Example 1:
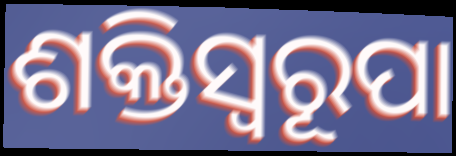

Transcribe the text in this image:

ଶକ୍ତିସ୍ବରୂପା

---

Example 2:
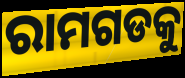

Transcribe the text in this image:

ରାମଗଡକୁ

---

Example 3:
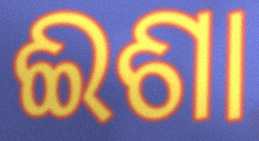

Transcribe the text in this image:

ଈଶା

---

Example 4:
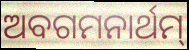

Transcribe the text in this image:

ଅବଗମନାର୍ଥମ୍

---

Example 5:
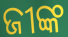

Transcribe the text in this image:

ଜୀଙ୍କ